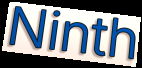
Ninth